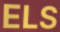
ELS